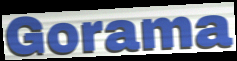
Gorama